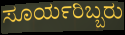
ಸೂರ್ಯರಿಬ್ಬರು